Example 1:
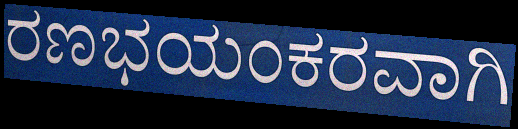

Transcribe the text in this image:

ರಣಭಯಂಕರವಾಗಿ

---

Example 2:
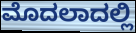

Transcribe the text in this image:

ಮೊದಲಾದಲ್ಲಿ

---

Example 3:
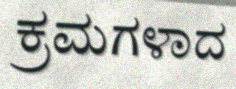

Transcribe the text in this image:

ಕ್ರಮಗಳಾದ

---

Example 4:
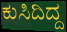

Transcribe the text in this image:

ಕುಸಿದಿದ್ದ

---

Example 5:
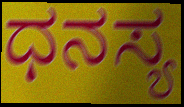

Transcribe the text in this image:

ಧನಸ್ಯ